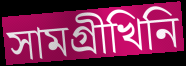
সামগ্ৰীখিনি